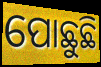
ପୋଛୁଛି